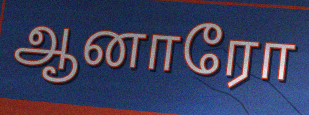
ஆனாரோ